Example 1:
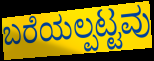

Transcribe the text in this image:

ಬರೆಯಲ್ಪಟ್ಟವು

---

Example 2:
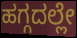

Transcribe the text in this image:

ಹಗ್ಗದಲ್ಲೇ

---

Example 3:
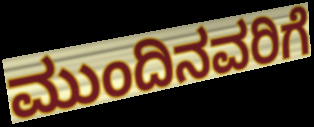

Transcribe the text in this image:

ಮುಂದಿನವರಿಗೆ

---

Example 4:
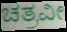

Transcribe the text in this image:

ಚತ್ರವೀ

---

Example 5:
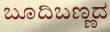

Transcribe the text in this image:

ಬೂದಿಬಣ್ಣದ